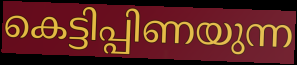
കെട്ടിപ്പിണയുന്ന